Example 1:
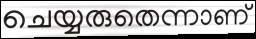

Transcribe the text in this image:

ചെയ്യരുതെന്നാണ്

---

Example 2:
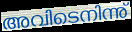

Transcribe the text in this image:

അവിടെനിന്നു്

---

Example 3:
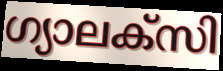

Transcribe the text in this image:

ഗ്യാലക്സി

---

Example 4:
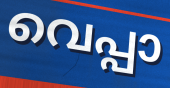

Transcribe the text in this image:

വെപ്പാ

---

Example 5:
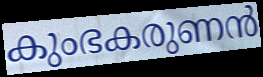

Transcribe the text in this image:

കുംഭകരുണൻ